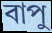
বাপু